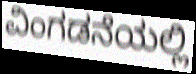
ವಿಂಗಡನೆಯಲ್ಲಿ